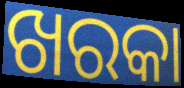
ଖରକା